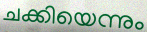
ചക്കിയെന്നും